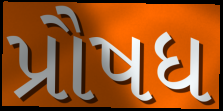
પ્રૌષધ